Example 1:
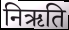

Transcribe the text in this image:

निऋति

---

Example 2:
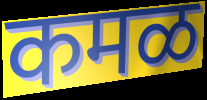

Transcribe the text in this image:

कमळ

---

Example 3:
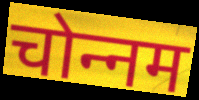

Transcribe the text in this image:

चोन्नम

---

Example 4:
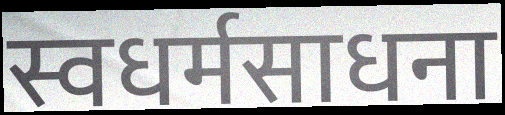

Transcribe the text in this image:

स्वधर्मसाधना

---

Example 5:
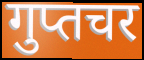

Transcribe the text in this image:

गुप्तचर